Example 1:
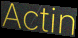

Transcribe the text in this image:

Actin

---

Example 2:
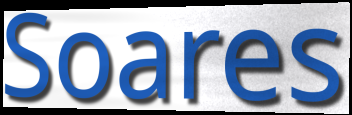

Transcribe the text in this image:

Soares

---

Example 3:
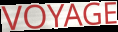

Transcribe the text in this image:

VOYAGE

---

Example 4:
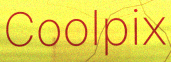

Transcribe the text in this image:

Coolpix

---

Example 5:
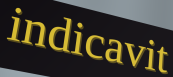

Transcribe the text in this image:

indicavit